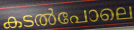
കടൽപോലെ